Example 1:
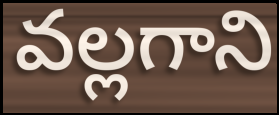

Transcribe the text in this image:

వల్లగాని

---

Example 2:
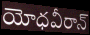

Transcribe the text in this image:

యోధవీరాన్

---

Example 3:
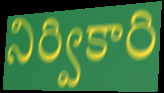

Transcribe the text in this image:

నిర్వికారి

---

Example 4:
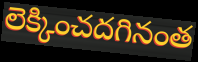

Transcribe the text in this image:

లెక్కించదగినంత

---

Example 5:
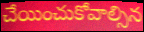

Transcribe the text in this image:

చేయించుకోవాల్సిన